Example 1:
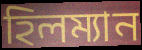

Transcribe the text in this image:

হিলম্যান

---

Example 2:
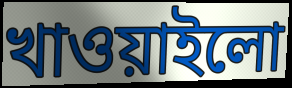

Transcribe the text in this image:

খাওয়াইলো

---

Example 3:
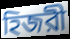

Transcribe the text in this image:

হিজরী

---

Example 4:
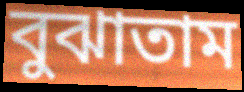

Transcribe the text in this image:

বুঝাতাম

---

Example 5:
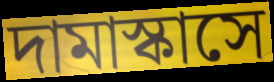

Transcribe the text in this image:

দামাস্কাসে